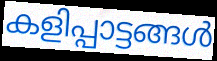
കളിപ്പാട്ടങ്ങൾ